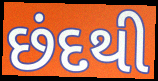
છંદથી